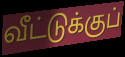
வீட்டுக்குப்